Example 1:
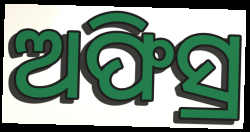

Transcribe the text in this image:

ଅଫିସ୍ର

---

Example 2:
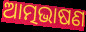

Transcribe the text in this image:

ଆତ୍ମଭାଷଣ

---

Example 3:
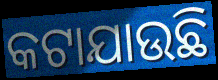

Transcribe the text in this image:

କଟାଯାଉଛି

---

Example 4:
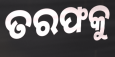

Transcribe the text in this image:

ତରଫକୁ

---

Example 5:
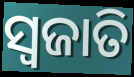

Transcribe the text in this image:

ସ୍ବଜାତି